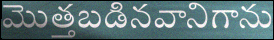
మొత్తబడినవానిగాను